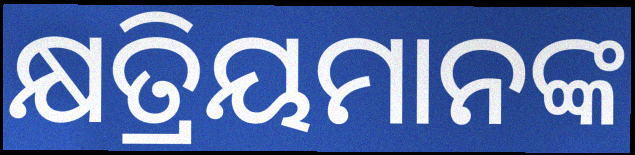
କ୍ଷତ୍ରିୟମାନଙ୍କ